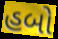
હબો